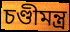
চণ্ডীমন্ত্র